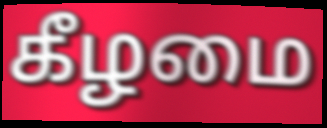
கீழமை